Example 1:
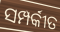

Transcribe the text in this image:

ସମ୍ପର୍କୀତ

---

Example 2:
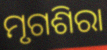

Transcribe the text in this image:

ମୃଗଶିରା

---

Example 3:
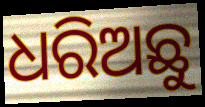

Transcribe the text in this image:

ଧରିଅଛୁ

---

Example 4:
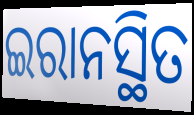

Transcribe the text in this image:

ଇରାନସ୍ଥିତ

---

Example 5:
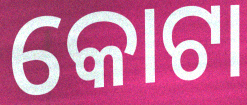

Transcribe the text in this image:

କୋଟା